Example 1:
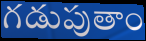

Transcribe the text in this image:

గడుపుతాం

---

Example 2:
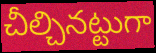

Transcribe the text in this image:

చీల్చినట్టుగా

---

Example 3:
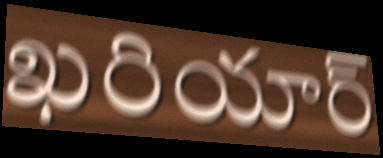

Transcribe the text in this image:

ఖరియార్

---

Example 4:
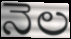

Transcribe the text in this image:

నెల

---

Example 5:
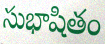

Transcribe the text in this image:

సుభాషితం